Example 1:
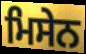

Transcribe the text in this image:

ਮਿਸੇਨ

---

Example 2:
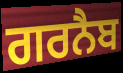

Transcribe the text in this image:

ਗਰਨੈਬ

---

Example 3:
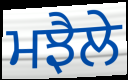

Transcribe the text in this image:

ਮਝੈਲੇ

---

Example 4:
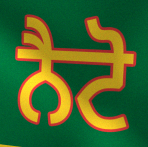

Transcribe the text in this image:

ਨੈਟੋ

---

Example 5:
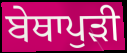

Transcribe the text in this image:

ਬੇਥਾਪੁੜੀ